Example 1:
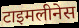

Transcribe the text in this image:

टाइमलीनेस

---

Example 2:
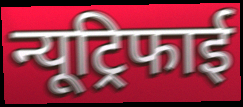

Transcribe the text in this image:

न्यूट्रिफाई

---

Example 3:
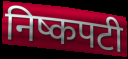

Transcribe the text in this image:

निष्कपटी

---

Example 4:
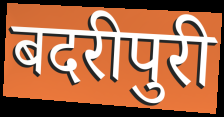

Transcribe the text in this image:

बदरीपुरी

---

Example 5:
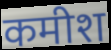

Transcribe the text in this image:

कमीश